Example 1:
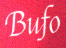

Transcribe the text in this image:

Bufo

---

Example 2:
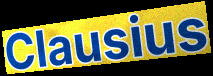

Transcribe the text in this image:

Clausius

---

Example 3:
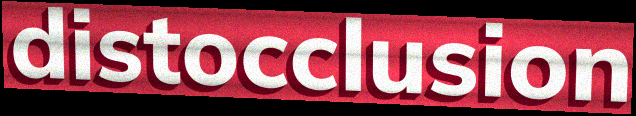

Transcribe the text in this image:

distocclusion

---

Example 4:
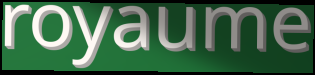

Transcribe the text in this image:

royaume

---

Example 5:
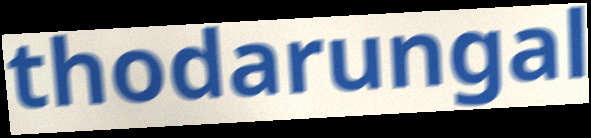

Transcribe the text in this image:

thodarungal